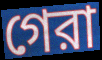
গেরা